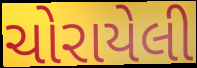
ચોરાયેલી